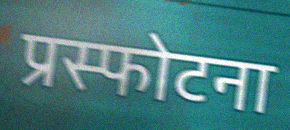
प्रस्फोटना